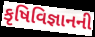
કૃષિવિજ્ઞાનની